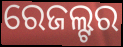
ରେଜଲ୍ଟର